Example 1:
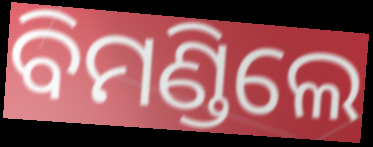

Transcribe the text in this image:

ବିମଣ୍ଡିଲେ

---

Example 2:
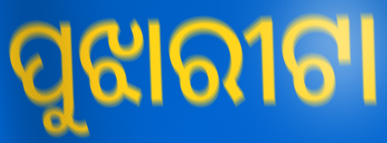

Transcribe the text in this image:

ପୁଝାରୀଟା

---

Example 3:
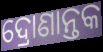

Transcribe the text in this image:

ଦ୍ରୋଣାନ୍ତକ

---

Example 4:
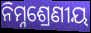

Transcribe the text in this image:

ନିମ୍ନଶ୍ରେଣୀୟ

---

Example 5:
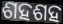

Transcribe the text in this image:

ଶହଶହ